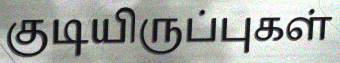
குடியிருப்புகள்